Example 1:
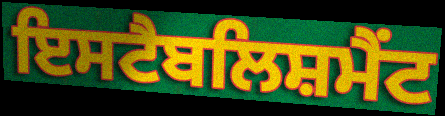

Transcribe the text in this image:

ਇਸਟੈਬਲਿਸ਼ਮੈਂਟ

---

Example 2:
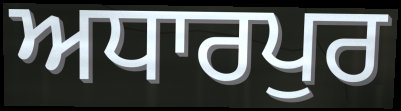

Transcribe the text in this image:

ਅਧਾਰਪੁਰ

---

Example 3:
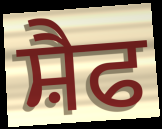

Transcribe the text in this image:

ਸ਼ੈਫ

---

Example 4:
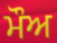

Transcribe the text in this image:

ਮੌਅ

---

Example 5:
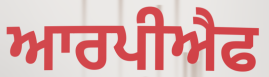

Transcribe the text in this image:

ਆਰਪੀਐਫ